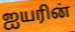
ஐயரின்